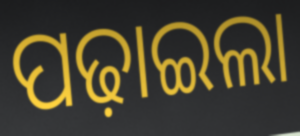
ପଢ଼ାଇଲା